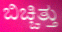
ಬಿಚ್ಚಿತ್ತು